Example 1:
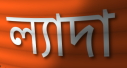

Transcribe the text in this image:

ল্যাদা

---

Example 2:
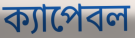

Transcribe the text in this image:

ক্যাপেবল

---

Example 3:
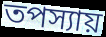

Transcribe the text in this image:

তপস্যায়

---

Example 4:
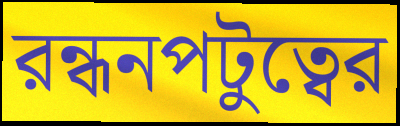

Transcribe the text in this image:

রন্ধনপটুত্বের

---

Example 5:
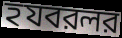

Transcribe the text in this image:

হযবরলর